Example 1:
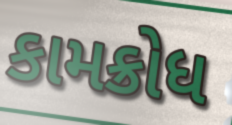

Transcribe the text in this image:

કામક્રોધ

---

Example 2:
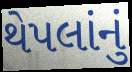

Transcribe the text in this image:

થેપલાંનું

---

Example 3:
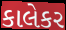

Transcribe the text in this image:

કાલેકર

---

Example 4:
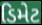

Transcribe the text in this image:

ડિમેટ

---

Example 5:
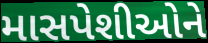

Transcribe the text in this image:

માસપેશીઓને